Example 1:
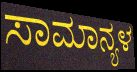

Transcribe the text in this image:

ಸಾಮಾನ್ಯಳ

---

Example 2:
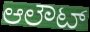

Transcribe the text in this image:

ಆಲೌಟ್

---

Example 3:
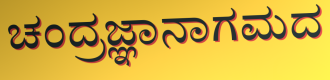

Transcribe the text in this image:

ಚಂದ್ರಜ್ಞಾನಾಗಮದ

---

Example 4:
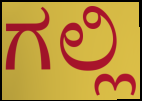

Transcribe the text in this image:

ಗಲ್ಲಿ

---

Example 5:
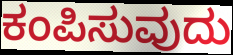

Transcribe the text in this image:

ಕಂಪಿಸುವುದು